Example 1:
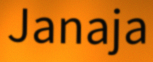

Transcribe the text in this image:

Janaja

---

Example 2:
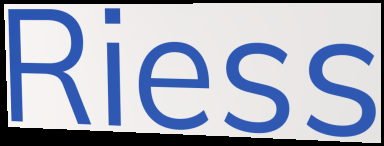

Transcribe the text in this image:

Riess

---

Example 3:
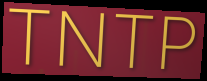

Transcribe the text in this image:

TNTP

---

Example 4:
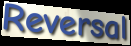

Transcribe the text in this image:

Reversal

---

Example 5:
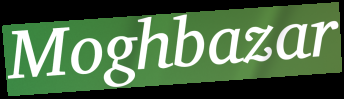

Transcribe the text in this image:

Moghbazar